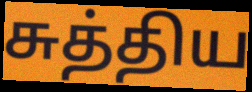
சுத்திய